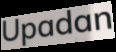
Upadan